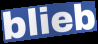
blieb